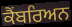
ਕੈਂਬਰਿਅਨ